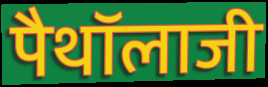
पैथॉलाजी